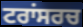
ਟਰਾਂਸਰਚ